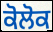
ਕੋਲੋਕ